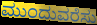
ಮುಂದುವರೆಸು